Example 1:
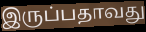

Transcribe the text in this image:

இருப்பதாவது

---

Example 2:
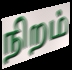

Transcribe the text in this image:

நிறம்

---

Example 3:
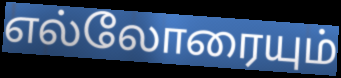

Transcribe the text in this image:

எல்லோரையும்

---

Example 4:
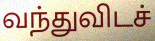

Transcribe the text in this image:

வந்துவிடச்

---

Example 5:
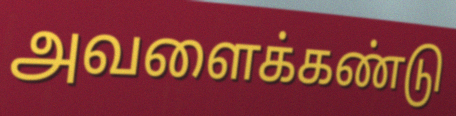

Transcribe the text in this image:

அவளைக்கண்டு